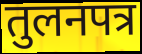
तुलनपत्र